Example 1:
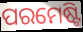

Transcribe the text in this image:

ପରମେଷ୍ଟି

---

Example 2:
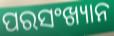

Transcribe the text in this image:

ପରସଂଖ୍ୟାନ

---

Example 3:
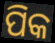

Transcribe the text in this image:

ପିକ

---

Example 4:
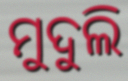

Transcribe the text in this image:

ମୁଦୁଲି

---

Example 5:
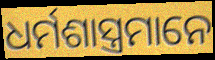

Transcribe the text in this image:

ଧର୍ମଶାସ୍ତ୍ରମାନେ